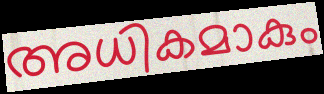
അധികമാകും